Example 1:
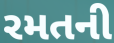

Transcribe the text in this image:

રમતની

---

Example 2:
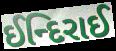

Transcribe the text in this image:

ઈન્દિરાઈ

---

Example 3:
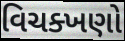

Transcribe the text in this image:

વિચક્ખણો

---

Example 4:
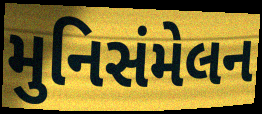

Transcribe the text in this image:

મુનિસંમેલન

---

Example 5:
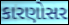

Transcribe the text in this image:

કારણોસર